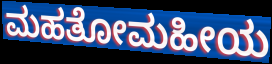
ಮಹತೋಮಹೀಯ